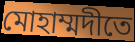
মোহাম্মদীতে